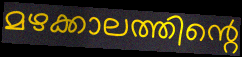
മഴക്കാലത്തിന്റെ